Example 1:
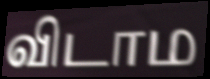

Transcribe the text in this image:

விடாம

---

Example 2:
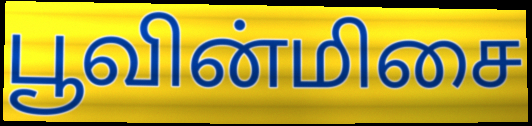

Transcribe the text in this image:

பூவின்மிசை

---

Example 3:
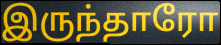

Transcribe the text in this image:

இருந்தாரோ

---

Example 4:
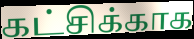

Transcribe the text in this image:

கட்சிக்காக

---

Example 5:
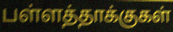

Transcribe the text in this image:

பள்ளத்தாக்குகள்